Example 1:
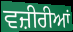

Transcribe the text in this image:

ਵਜ਼ੀਰੀਆਂ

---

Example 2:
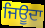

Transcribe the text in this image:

ਜਿਊੂਂਦਾ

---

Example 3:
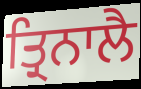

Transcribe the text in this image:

ਤ੍ਰਿਨਾਲੈ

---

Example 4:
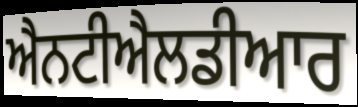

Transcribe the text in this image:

ਐਨਟੀਐਲਡੀਆਰ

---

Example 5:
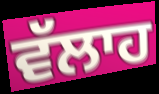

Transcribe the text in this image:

ਵੱਲਾਹ